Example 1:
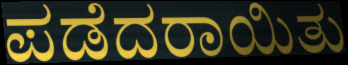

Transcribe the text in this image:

ಪಡೆದರಾಯಿತು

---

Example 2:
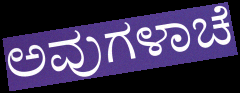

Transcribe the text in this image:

ಅವುಗಳಾಚೆ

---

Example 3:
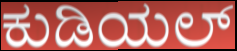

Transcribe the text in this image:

ಕುಡಿಯಲ್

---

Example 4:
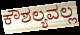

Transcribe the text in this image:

ಕೌಶಲ್ಯವಲ್ಲ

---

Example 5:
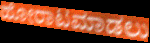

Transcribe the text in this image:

ಹೋರಾಟಮಾಡಲು